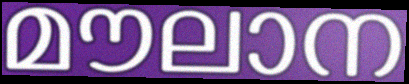
മൗലാന